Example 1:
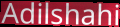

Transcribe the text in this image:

Adilshahi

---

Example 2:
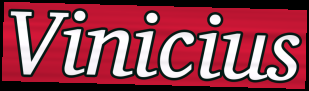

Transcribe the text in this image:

Vinicius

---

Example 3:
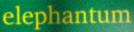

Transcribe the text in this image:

elephantum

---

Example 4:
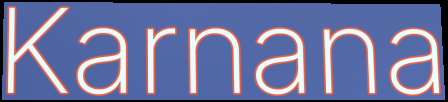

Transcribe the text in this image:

Karnana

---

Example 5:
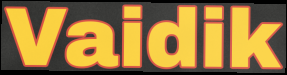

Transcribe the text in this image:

Vaidik